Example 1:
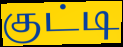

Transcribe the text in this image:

குட்டி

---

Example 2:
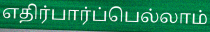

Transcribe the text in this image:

எதிர்பார்ப்பெல்லாம்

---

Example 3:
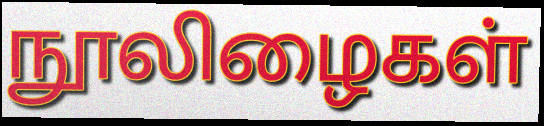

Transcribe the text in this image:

நூலிழைகள்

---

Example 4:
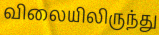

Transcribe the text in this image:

விலையிலிருந்து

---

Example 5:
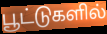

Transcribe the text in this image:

பூட்டுகளில்